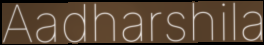
Aadharshila